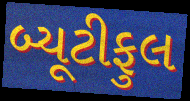
બ્યૂટીફુલ